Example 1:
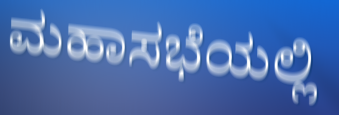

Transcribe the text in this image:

ಮಹಾಸಭೆಯಲ್ಲಿ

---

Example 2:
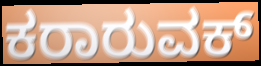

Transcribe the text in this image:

ಕರಾರುವಕ್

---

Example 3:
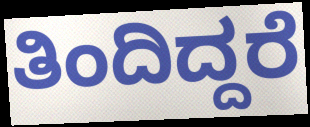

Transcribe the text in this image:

ತಿಂದಿದ್ದರೆ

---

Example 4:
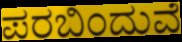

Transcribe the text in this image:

ಪರಬಿಂದುವೆ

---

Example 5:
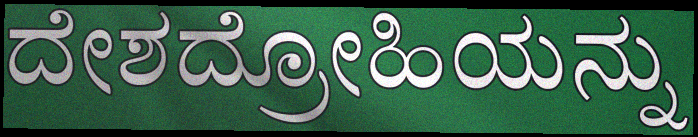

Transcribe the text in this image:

ದೇಶದ್ರೋಹಿಯನ್ನು